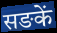
सङकें